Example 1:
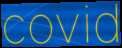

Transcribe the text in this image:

covid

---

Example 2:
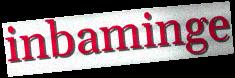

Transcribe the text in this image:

inbaminge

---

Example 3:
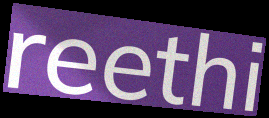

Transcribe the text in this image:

reethi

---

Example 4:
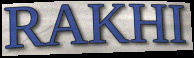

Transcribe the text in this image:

RAKHI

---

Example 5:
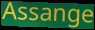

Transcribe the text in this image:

Assange